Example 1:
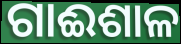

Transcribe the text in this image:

ଗାଈଶାଳ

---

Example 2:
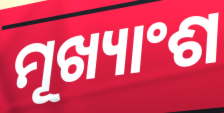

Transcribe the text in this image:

ମୂଖ୍ୟାଂଶ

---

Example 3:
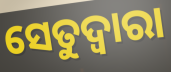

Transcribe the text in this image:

ସେତୁଦ୍ୱାରା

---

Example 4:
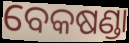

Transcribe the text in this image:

ବେକଷଣ୍ଡା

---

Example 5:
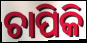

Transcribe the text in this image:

ଚାପିକି